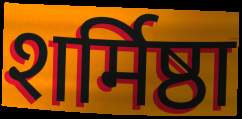
शर्मिष्ठा